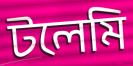
টলেমি